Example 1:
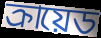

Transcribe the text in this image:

ক্রায়েড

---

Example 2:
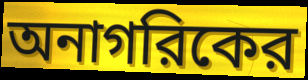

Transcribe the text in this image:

অনাগরিকের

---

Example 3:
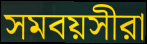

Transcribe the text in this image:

সমবয়সীরা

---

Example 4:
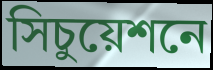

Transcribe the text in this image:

সিচুয়েশনে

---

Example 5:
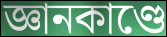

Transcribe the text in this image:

জ্ঞানকাণ্ডে